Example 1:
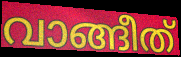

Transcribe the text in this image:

വാങ്ങീത്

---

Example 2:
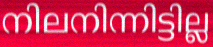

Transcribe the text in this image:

നിലനിന്നിട്ടില്ല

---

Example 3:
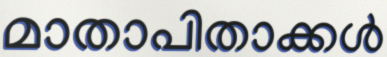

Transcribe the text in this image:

മാതാപിതാക്കൾ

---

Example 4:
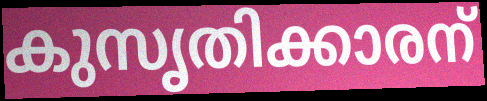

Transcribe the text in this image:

കുസൃതിക്കാരന്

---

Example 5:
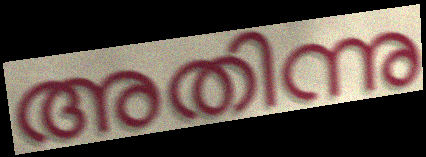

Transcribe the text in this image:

അതിന്നു